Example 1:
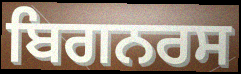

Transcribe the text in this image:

ਬਿਗਨਰਸ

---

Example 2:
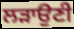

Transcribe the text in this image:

ਲੜਾਉਣੀ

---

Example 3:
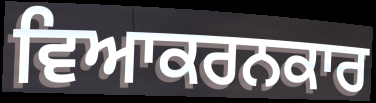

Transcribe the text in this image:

ਵਿਆਕਰਨਕਾਰ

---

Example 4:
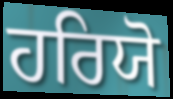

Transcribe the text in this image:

ਹਰਿਯੋ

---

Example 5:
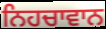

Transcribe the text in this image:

ਨਿਹਚਾਵਾਨ